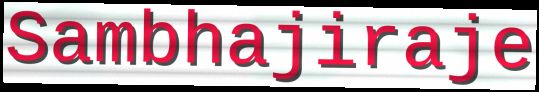
Sambhajiraje